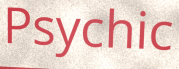
Psychic